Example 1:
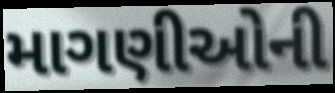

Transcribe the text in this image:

માગણીઓની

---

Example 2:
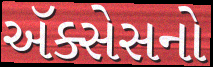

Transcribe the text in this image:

ઍક્સેસનો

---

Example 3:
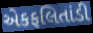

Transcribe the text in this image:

એકફલિતાંડી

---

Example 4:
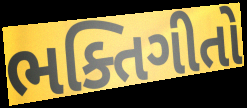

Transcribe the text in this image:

ભક્તિગીતો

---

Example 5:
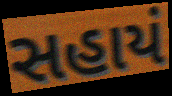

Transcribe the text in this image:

સહાયં